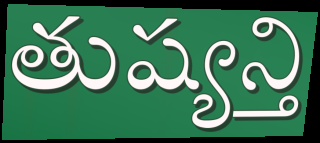
తుష్యన్తి